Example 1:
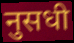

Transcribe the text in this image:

नुसधी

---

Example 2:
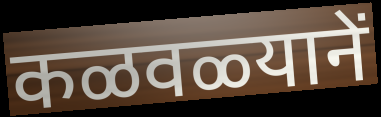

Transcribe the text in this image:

कळवळ्यानें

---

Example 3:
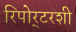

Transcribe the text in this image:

रिपोर्टरशी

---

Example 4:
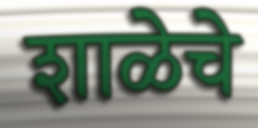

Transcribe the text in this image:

शाळेचे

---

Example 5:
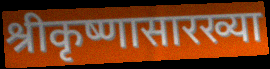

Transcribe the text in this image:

श्रीकृष्णासारख्या